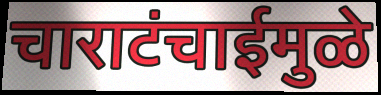
चाराटंचाईमुळे